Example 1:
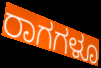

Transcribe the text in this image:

ರಾಗಗಳೂ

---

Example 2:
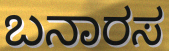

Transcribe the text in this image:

ಬನಾರಸ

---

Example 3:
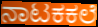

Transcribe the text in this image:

ನಾಟಕಕಲೆ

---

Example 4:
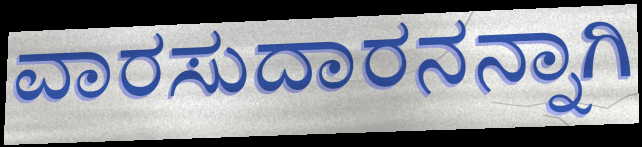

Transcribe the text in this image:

ವಾರಸುದಾರನನ್ನಾಗಿ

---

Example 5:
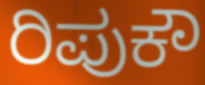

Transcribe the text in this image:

ರಿಪುಕೌ